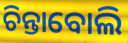
ଚିନ୍ତାବୋଲି